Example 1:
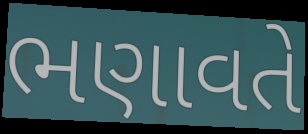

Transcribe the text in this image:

ભણાવતે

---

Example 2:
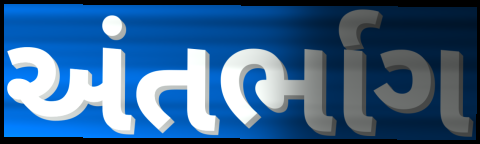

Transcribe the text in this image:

અંતર્ભાગ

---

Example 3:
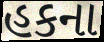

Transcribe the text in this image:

હકના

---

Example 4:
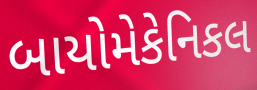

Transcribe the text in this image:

બાયોમેકેનિકલ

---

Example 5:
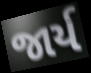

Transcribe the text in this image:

જાર્ય